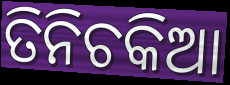
ତିନିଚକିଆ